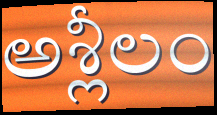
అశ్లీలం